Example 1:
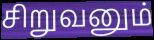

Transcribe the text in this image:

சிறுவனும்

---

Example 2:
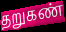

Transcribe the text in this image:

தறுகண்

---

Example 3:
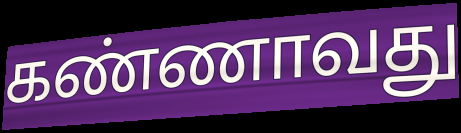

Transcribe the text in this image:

கண்ணாவது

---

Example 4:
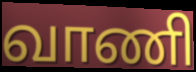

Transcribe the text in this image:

வாணி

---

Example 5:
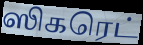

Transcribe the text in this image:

ஸிகரெட்